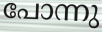
പോന്നു